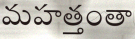
మహత్తంతా